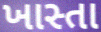
ખાસ્તા